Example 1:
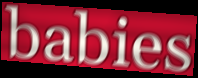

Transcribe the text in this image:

babies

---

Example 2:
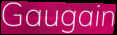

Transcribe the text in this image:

Gaugain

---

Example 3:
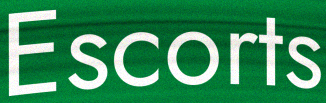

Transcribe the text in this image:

Escorts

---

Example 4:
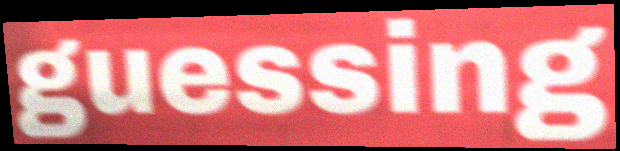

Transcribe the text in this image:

guessing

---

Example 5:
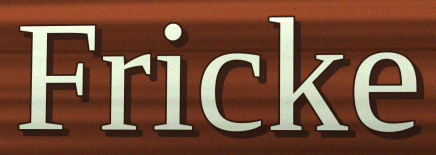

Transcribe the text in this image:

Fricke